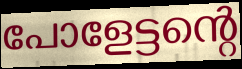
പോളേട്ടന്റെ